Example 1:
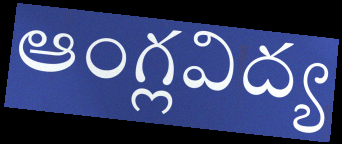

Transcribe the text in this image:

ఆంగ్లవిద్య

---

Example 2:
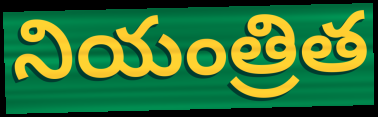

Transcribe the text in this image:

నియంత్రిత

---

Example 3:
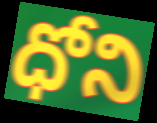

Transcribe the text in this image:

ధోని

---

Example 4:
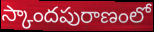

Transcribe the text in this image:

స్కాందపురాణంలో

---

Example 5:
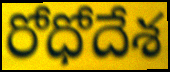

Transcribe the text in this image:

రోధోదేశ